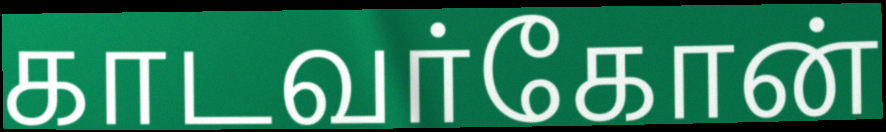
காடவர்கோன்